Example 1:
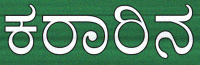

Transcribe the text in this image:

ಕರಾರಿನ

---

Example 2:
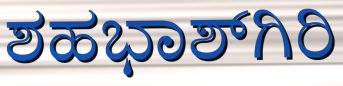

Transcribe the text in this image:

ಶಹಭಾಶ್‌ಗಿರಿ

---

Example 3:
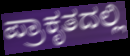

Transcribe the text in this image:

ಪ್ರಾಕೃತದಲ್ಲಿ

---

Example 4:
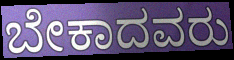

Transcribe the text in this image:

ಬೇಕಾದವರು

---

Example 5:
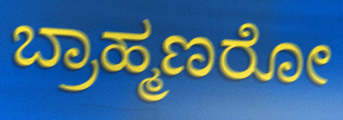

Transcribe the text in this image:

ಬ್ರಾಹ್ಮಣರೋ